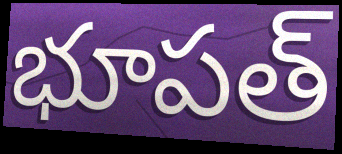
భూపత్